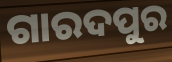
ଗାରଦପୁର